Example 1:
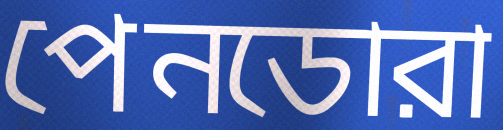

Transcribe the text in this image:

পেনডোরা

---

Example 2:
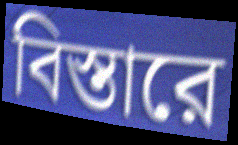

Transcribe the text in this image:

বিস্তারে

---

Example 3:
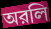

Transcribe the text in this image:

অরলি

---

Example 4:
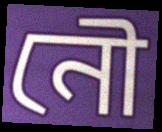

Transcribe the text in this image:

নৌ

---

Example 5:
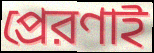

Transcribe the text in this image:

প্রেরণাই